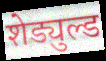
शेड्युल्ड